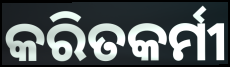
କରିତକର୍ମୀ